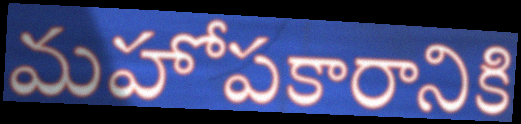
మహోపకారానికి